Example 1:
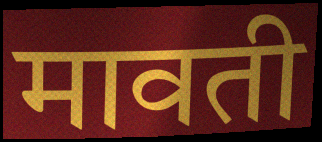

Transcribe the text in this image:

मावती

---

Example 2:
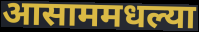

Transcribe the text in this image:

आसाममधल्या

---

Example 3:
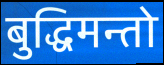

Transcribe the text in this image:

बुद्धिमन्तो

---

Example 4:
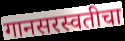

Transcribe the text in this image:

गानसरस्वतीचा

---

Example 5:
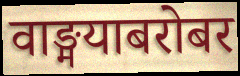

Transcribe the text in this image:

वाङ्मयाबरोबर